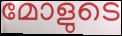
മോളുടെ